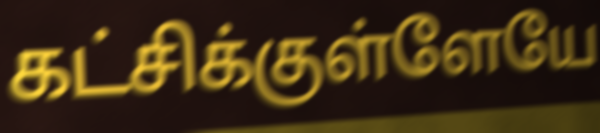
கட்சிக்குள்ளேயே